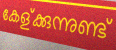
കേള്ക്കുന്നുണ്ട്